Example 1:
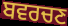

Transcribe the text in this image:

ਬਵਰਚਣ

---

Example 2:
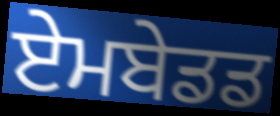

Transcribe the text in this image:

ਏਮਬੇਡਡ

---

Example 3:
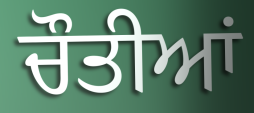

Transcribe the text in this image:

ਚੌਤੀਆਂ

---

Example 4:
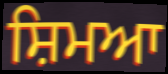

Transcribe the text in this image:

ਸ਼ਿਮਆ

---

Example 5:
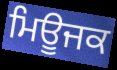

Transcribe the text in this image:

ਮਿਊਜਕ